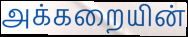
அக்கறையின்